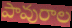
పావురాల